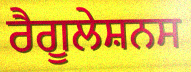
ਰੈਗੂਲੇਸ਼ਨਸ